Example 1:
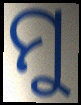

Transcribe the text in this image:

ମୁ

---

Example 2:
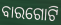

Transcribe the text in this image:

ବାରଗୋଟି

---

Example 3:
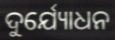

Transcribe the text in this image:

ଦୁର୍ଯ୍ୟୋଧନ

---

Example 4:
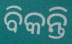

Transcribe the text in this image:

ବିକନ୍ତି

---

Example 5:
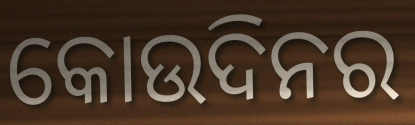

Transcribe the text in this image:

କୋଉଦିନର